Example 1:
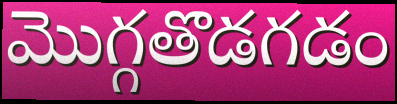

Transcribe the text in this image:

మొగ్గతొడగడం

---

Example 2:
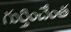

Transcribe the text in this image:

గుర్తించేంత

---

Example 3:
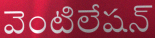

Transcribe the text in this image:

వెంటిలేషన్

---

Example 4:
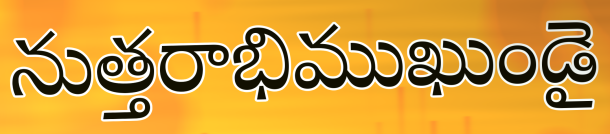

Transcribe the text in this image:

నుత్తరాభిముఖుండై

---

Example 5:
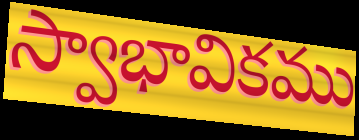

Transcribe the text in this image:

స్వాభావికము